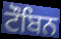
ਟੌਬਿਨ